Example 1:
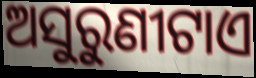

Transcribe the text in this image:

ଅସୁରୁଣୀଟାଏ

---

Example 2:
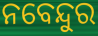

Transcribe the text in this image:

ନବେନ୍ଦୁର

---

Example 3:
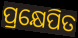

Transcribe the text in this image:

ପ୍ରକ୍ଷେପିତ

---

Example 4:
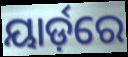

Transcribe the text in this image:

ୟାର୍ଡ଼ରେ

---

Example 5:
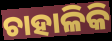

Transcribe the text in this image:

ଚାହାଳିକି